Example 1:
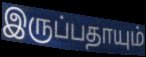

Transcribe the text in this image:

இருப்பதாயும்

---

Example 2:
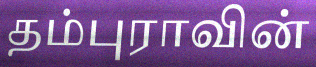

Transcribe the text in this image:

தம்புராவின்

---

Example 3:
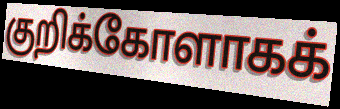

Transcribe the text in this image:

குறிக்கோளாகக்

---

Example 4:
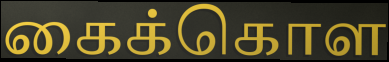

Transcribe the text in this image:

கைக்கொள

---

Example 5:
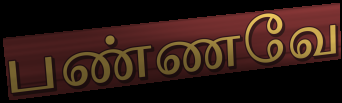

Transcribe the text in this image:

பண்ணவே